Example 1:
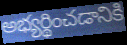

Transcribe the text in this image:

అభ్యర్థించడానికి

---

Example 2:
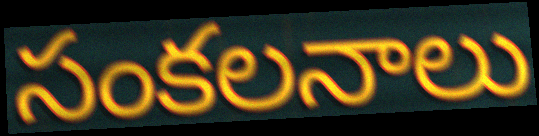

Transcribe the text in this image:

సంకలనాలు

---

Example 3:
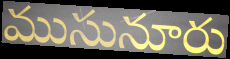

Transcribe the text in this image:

ముసునూరు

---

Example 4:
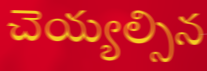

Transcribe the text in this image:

చెయ్యల్సిన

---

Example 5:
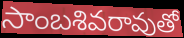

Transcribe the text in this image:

సాంబశివరావుతో